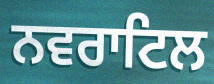
ਨਵਰਾਟਿਲ